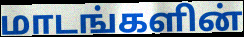
மாடங்களின்